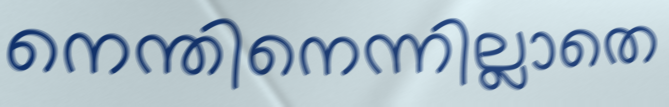
നെന്തിനെന്നില്ലാതെ